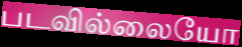
படவில்லையோ